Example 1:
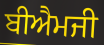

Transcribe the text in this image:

ਬੀਐਮਜੀ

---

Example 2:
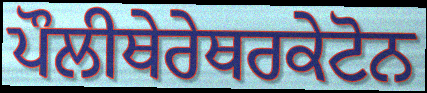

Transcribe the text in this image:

ਪੌਲੀਥੇਰੇਥਰਕੇਟੋਨ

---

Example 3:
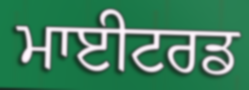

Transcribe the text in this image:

ਮਾਈਟਰਡ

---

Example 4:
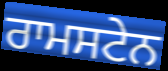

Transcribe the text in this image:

ਰਾਮਸਟੇਨ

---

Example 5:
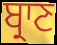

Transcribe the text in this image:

ਬ੍ਰਾਣ